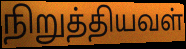
நிறுத்தியவள்